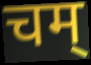
चम्